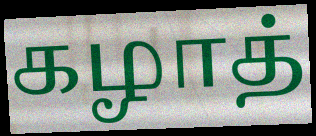
கழாத்